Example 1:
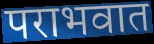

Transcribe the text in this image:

पराभवात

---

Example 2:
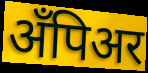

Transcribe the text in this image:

अँपिअर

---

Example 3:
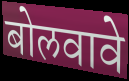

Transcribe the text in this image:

बोलवावे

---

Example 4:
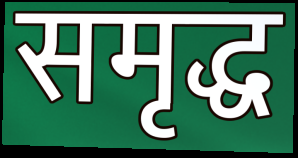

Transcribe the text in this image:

समृद्ध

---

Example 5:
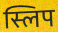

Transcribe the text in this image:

स्लिप